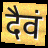
दैवं